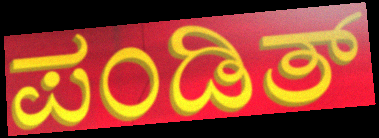
ಪಂಡಿತ್